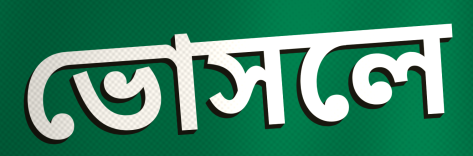
ভোসলে